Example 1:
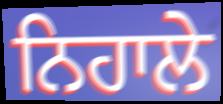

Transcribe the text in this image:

ਨਿਹਾਲੇ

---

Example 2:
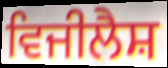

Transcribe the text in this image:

ਵਿਜੀਲੈਸ਼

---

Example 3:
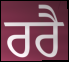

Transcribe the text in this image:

ਰਰੈ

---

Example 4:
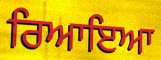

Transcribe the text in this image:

ਰਿਆਇਆ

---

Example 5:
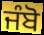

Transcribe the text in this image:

ਜੰਬੋ